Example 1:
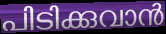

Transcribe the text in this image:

പിടിക്കുവാൻ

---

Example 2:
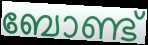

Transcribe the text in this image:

ബോണ്ട്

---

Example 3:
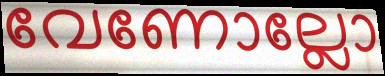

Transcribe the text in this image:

വേണോല്ലോ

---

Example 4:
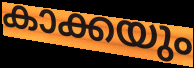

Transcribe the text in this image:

കാക്കയും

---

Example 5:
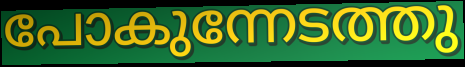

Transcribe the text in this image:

പോകുന്നേടത്തു